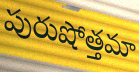
పురుషోత్తమా